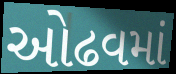
ઓઢવમાં